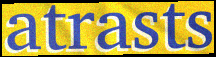
atrasts